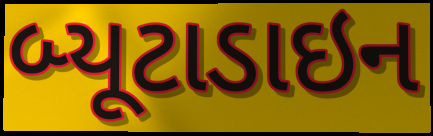
બ્યૂટાડાઇન